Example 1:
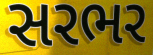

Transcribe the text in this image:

સરભર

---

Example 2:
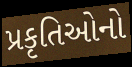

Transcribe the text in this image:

પ્રકૃતિઓનો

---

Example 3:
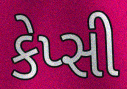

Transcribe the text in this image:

કેપ્સી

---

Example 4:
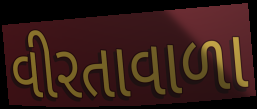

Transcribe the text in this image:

વીરતાવાળા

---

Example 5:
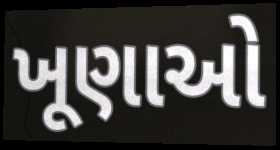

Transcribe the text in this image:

ખૂણાઓ